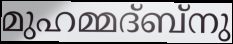
മുഹമ്മദ്ബ്നു